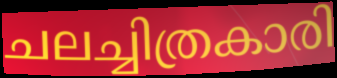
ചലച്ചിത്രകാരി